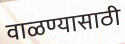
वाळण्यासाठी